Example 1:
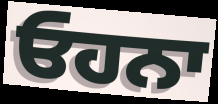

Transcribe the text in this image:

ਓਹਨਾ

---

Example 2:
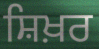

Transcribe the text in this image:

ਸ਼ਿਖ਼ਰ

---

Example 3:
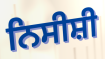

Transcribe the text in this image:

ਨਿਸੀਸ਼ੀ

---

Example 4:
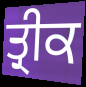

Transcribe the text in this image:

ਤ੍ਰੀਕ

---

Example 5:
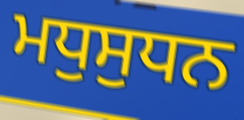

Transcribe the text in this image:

ਮਧੁਸੁਧਨ